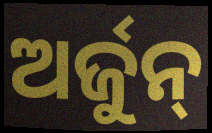
ଅର୍ଜୁନ୍